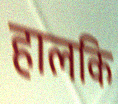
हालकि